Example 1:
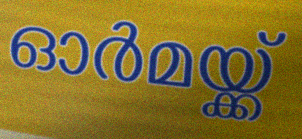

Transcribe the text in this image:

ഓർമയ്ക്ക്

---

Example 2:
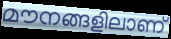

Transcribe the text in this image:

മൗനങ്ങളിലാണ്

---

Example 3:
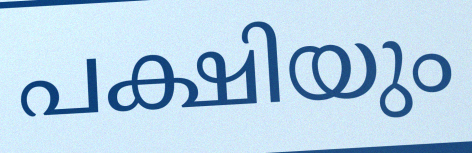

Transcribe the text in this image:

പക്ഷിയും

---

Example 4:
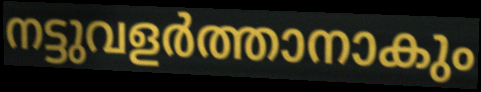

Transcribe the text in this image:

നട്ടുവളർത്താനാകും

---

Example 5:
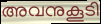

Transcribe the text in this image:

അവനുകൂടി